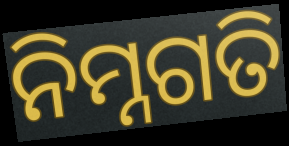
ନିମ୍ନଗତି